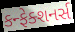
કન્ફેક્શનર્સ